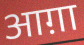
आग़ा